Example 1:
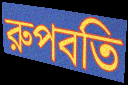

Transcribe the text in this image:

রুপবতি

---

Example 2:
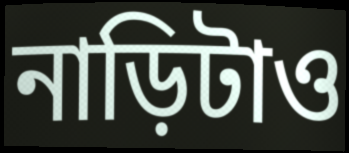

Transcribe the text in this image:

নাড়িটাও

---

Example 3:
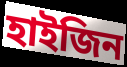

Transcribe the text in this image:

হাইজিন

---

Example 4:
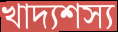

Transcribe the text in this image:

খাদ্যশস্য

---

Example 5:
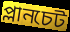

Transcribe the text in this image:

প্লানচেট